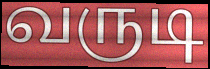
வருடி